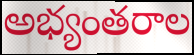
అభ్యంతరాల